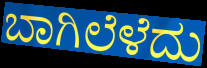
ಬಾಗಿಲೆಳೆದು